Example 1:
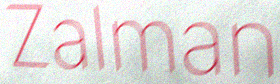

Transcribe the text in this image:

Zalman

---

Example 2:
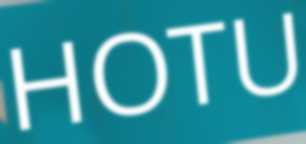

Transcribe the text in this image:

HOTU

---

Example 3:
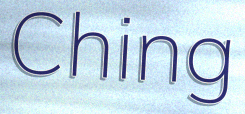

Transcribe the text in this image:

Ching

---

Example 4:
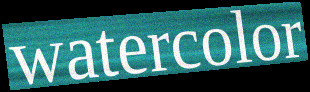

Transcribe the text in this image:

watercolor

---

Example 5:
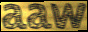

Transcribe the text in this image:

aaw